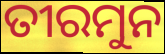
ତୀରମୁନ